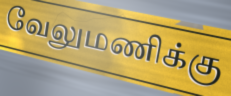
வேலுமணிக்கு